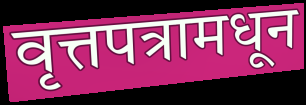
वृत्तपत्रामधून